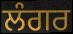
ਲੰਗਰ